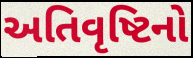
અતિવૃષ્ટિનો